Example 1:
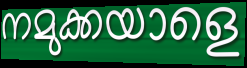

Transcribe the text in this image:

നമുക്കയാളെ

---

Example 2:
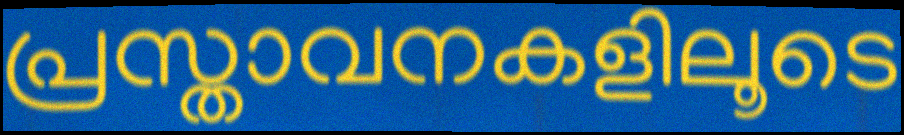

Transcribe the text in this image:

പ്രസ്താവനകളിലൂടെ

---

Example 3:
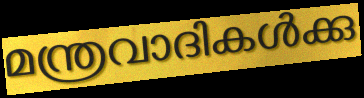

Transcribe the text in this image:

മന്ത്രവാദികൾക്കു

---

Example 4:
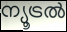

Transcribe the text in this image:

ന്യൂട്രൽ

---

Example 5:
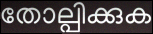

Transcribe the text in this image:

തോല്പിക്കുക